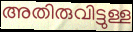
അതിരുവിട്ടുള്ള